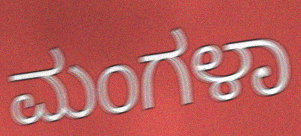
ಮಂಗಳಾ